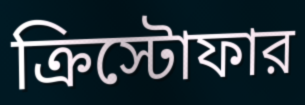
ক্রিস্টোফার